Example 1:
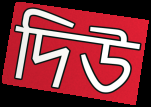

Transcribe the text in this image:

দিউ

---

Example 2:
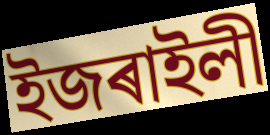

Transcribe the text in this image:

ইজৰাইলী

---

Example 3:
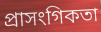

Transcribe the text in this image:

প্ৰাসংগিকতা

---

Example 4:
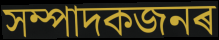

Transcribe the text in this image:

সম্পাদকজনৰ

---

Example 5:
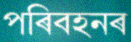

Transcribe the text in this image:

পৰিবহনৰ